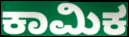
ಕಾಮಿಕ